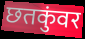
छतकुंवर